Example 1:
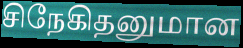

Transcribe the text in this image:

சிநேகிதனுமான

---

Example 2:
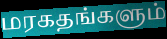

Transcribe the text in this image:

மரகதங்களும்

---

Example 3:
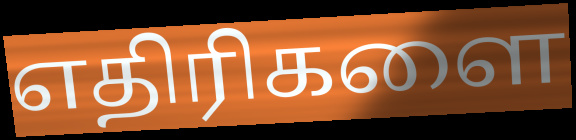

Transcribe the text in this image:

எதிரிகளை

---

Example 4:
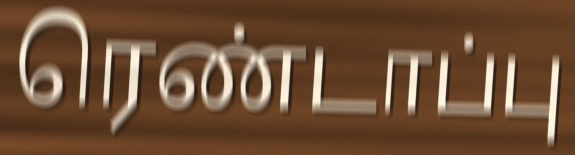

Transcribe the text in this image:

ரெண்டாப்பு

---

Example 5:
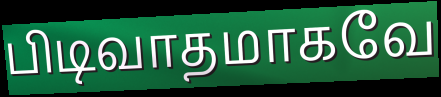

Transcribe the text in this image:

பிடிவாதமாகவே